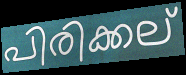
പിരിക്കല്